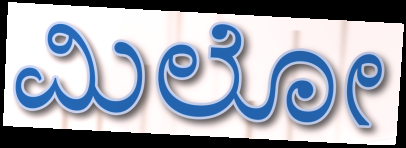
ಮಿಲೋ